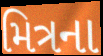
મિત્રના